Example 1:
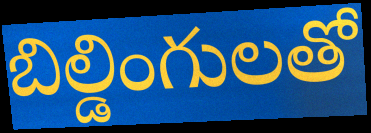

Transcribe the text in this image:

బిల్డింగులతో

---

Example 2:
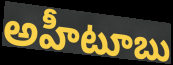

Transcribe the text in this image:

అహీటూబు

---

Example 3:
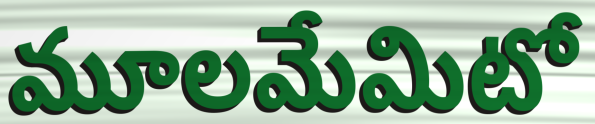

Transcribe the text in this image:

మూలమేమిటో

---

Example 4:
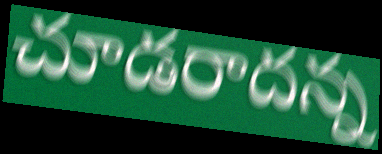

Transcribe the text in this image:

చూడరాదన్న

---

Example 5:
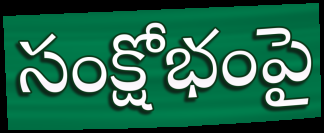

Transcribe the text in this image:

సంక్షోభంపై